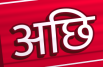
अछि